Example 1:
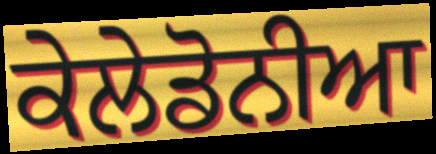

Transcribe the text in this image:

ਕੇਲੇਡੋਨੀਆ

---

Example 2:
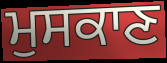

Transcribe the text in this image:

ਮੁਸਕਾਣ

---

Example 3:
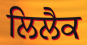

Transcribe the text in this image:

ਲਿਲੈਕ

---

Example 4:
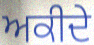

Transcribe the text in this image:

ਅਕੀਦੇ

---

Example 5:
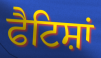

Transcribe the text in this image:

ਫੈਟਿਸ਼ਾਂ